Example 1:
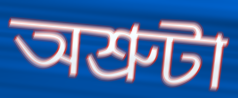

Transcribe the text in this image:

অশ্রুটা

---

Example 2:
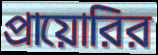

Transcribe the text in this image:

প্রায়োরির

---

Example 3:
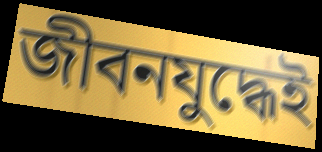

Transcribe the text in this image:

জীবনযুদ্ধেই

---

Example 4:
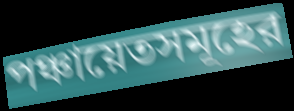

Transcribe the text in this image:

পঞ্চায়েতসমূহের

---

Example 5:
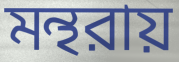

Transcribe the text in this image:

মন্থরায়